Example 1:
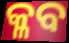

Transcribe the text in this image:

କ୍ଳବ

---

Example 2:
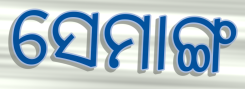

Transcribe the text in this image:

ସେମାଙ୍ଗ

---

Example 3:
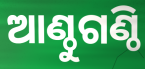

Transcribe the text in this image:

ଆଣ୍ଠୁଗଣ୍ଠି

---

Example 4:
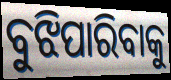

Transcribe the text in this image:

ବୁଝିପାରିବାକୁ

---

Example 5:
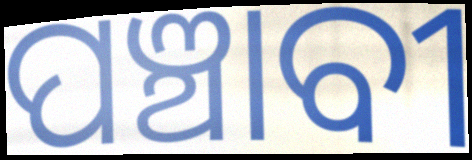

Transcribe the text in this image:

ପଞ୍ଚାବୀ